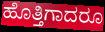
ಹೊತ್ತಿಗಾದರೂ